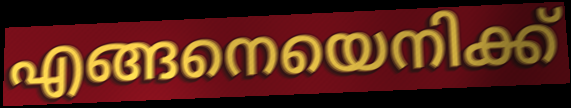
എങ്ങനെയെനിക്ക്